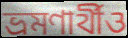
ভ্রমণার্থীও